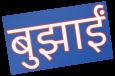
बुझाईं